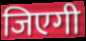
जिएगी